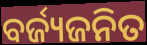
ବର୍ଜ୍ୟଜନିତ